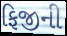
ફિજીની